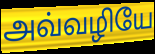
அவ்வழியே